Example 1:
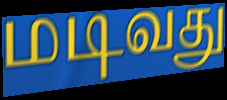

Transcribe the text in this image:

மடிவது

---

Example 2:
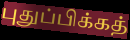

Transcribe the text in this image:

புதுப்பிக்கத்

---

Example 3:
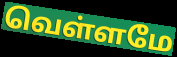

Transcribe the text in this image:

வெள்ளமே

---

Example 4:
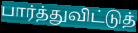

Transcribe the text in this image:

பார்த்துவிட்டுத்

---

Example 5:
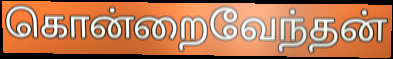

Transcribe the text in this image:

கொன்றைவேந்தன்